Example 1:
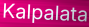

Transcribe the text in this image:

Kalpalata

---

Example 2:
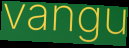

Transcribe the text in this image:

vangu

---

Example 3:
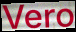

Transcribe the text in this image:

Vero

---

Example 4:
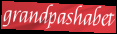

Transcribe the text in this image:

grandpashabet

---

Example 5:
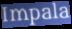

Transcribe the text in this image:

Impala